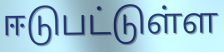
ஈடுபட்டுள்ள